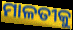
ମାଳତୀକୁ